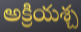
అక్రియశ్చ